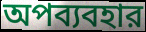
অপব্যবহার